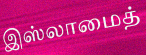
இஸ்லாமைத்